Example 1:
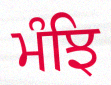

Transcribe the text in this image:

ਮੰਝਿ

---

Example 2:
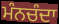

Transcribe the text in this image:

ਮੰਨਚੰਦਾ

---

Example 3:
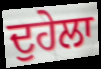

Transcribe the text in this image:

ਦੁਹੇਲਾ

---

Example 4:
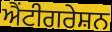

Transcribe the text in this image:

ਐਂਟੀਗਰੇਸ਼ਨ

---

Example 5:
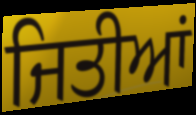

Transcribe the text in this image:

ਜਿਤੀਆਂ